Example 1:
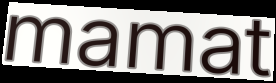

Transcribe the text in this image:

mamat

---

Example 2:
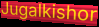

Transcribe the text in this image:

Jugalkishor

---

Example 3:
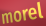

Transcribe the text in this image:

morel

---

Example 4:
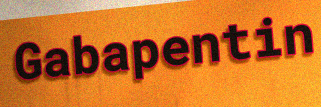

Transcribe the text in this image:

Gabapentin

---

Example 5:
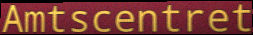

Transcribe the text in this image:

Amtscentret